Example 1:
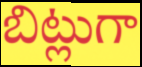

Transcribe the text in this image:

బిట్లుగా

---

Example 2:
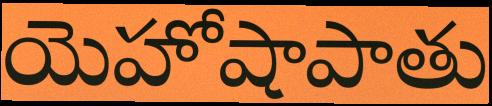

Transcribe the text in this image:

యెహోషాపాతు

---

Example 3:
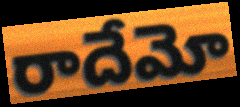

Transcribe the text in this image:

రాదేమో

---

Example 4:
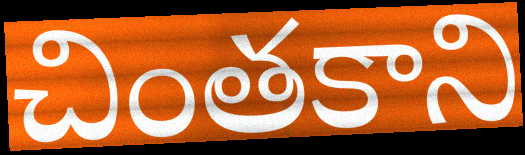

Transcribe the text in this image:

చింతకాని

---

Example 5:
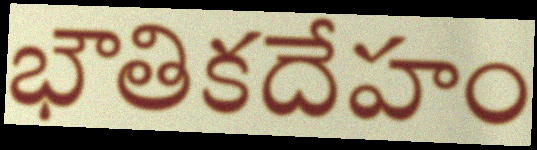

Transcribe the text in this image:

భౌతికదేహం